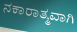
ನಕಾರಾತ್ಮವಾಗಿ